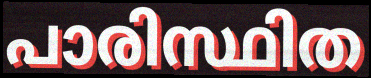
പാരിസ്ഥിത